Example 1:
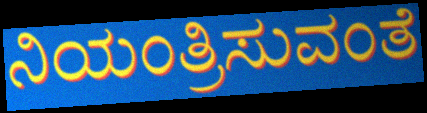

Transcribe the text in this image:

ನಿಯಂತ್ರಿಸುವಂತೆ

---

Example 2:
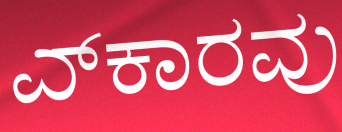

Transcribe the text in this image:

ಎ್‍ಕಾರವು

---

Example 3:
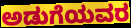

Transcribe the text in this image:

ಅಡುಗೆಯವರ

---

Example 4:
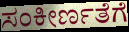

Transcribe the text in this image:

ಸಂಕೀರ್ಣತೆಗೆ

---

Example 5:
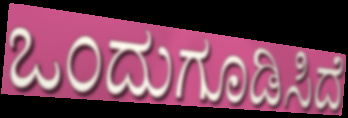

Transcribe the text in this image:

ಒಂದುಗೂಡಿಸಿದೆ